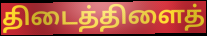
திடைத்திளைத்